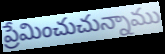
ప్రేమించుచున్నాము